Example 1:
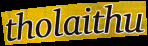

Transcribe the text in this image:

tholaithu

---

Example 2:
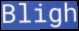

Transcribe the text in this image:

Bligh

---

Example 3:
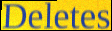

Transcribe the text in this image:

Deletes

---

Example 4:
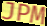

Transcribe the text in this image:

JPM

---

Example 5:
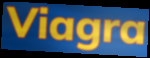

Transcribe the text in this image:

Viagra